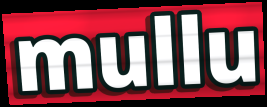
mullu